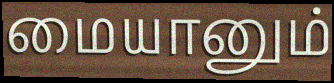
மையானும்